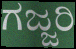
ಗಜ್ಜರಿ